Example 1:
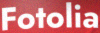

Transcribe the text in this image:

Fotolia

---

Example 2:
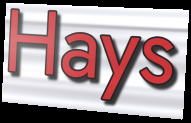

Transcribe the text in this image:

Hays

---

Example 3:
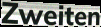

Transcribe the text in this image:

Zweiten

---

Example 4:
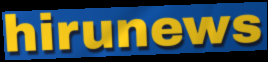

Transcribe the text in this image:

hirunews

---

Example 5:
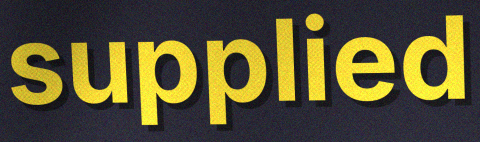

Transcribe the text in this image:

supplied